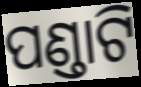
ପଣ୍ଡାଟି